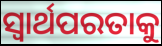
ସ୍ଵାର୍ଥପରତାକୁ